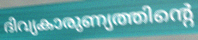
ദിവ്യകാരുണ്യത്തിന്റെ